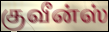
குவீன்ஸ்